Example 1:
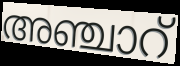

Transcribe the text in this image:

അഞ്ചാറ്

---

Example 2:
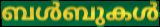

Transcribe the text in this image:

ബൾബുകൾ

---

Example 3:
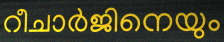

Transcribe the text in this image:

റീചാർജിനെയും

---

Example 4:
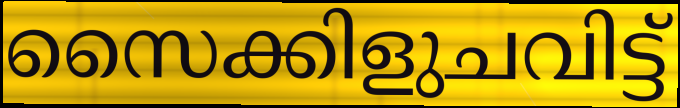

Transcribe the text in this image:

സൈക്കിളുചവിട്ട്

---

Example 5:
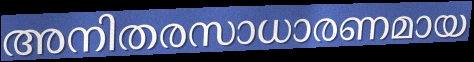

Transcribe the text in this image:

അനിതരസാധാരണമായ